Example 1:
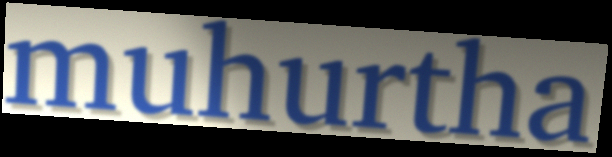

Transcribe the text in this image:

muhurtha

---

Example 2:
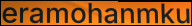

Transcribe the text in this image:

eramohanmku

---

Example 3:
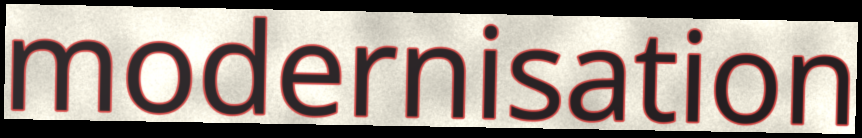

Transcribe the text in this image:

modernisation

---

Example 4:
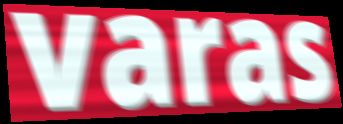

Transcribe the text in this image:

varas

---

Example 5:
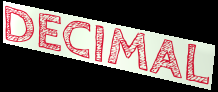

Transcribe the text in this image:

DECIMAL